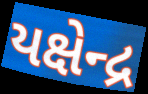
યક્ષેન્દ્ર